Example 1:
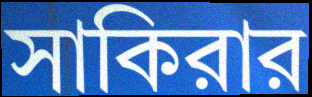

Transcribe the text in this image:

সাকিরার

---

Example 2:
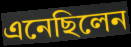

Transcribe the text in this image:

এনেছিলেন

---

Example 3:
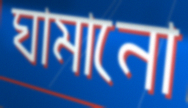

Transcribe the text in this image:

ঘামানো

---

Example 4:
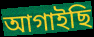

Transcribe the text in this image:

আগাইছি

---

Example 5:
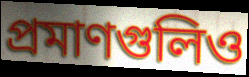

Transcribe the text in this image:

প্রমাণগুলিও